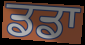
ਡਡਾ